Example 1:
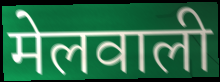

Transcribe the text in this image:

मेलवाली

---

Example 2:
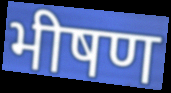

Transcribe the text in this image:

भीषण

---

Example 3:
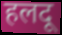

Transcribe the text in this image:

हलदू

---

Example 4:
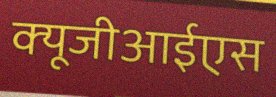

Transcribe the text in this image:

क्यूजीआईएस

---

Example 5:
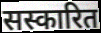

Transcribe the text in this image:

सस्कारित